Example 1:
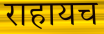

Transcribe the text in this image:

राहायच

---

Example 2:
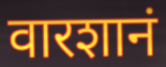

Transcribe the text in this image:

वारशानं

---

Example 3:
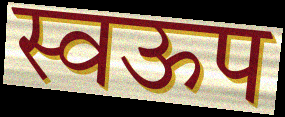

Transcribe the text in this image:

स्वऊप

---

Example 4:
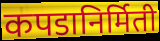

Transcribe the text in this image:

कपडानिर्मिती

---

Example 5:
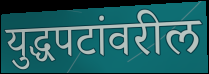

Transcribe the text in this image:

युद्धपटांवरील